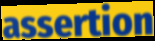
assertion